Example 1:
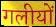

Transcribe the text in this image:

गलीयों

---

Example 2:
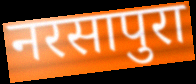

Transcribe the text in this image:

नरसापुरा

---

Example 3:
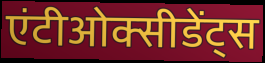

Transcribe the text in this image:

एंटीओक्सीडेंट्स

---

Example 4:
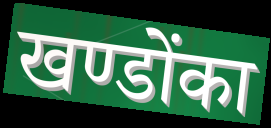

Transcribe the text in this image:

खण्डोंका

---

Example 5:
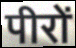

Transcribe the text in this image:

पीरों